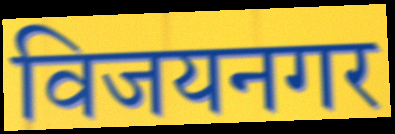
विजयनगर